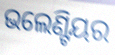
ଭଲେଣ୍ଟିୟର